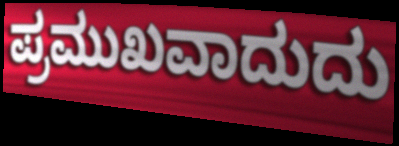
ಪ್ರಮುಖವಾದುದು